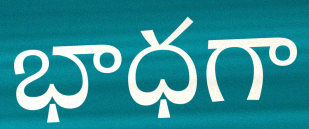
భాధగా